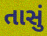
તાસું